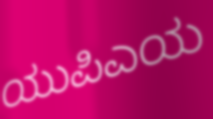
ಯುಪಿಎಯ